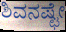
ಶಿವನಷ್ಟೇ